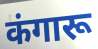
कंगारू